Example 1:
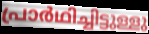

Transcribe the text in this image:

പ്രാർഥിച്ചിട്ടുള്ളു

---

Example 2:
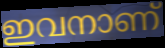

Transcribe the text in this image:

ഇവനാണ്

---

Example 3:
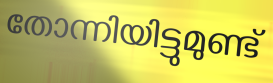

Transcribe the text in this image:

തോന്നിയിട്ടുമുണ്ട്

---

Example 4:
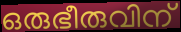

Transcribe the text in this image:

ഒരുഭീരുവിന്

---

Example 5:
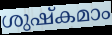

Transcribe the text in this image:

ശുഷ്കമാം